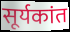
सूर्यकांत